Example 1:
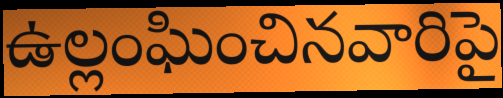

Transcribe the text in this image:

ఉల్లంఘించినవారిపై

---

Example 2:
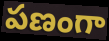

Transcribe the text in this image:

పణంగా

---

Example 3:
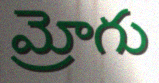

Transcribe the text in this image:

మ్రోగు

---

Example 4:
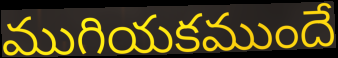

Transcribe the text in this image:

ముగియకముందే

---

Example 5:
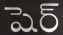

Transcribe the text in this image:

షెర్